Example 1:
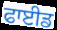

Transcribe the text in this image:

ਫਾਈਡ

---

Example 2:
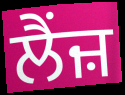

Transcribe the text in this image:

ਲੈਂਜ਼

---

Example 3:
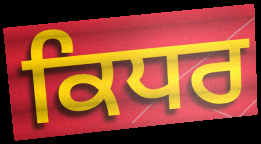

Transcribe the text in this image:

ਕਿਧਰ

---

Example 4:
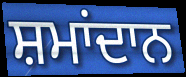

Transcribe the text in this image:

ਸ਼ਮਾਂਦਾਨ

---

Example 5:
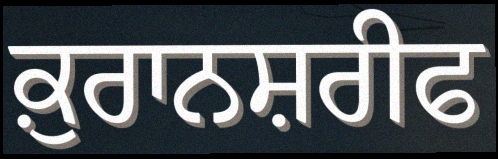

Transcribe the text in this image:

ਕ਼ੁਰਾਨਸ਼ਰੀਫ